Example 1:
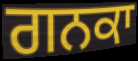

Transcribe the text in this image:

ਗਨਕਾ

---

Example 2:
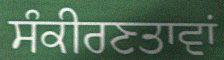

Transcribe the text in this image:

ਸੰਕੀਰਣਤਾਵਾਂ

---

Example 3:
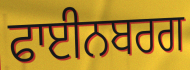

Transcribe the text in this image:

ਫਾਈਨਬਰਗ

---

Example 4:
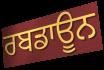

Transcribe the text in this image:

ਰਬਡਾਊਨ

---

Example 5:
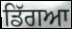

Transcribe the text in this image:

ਡਿੱਗਆ